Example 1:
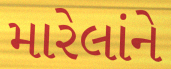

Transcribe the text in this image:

મારેલાંને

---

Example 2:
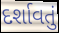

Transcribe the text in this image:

દર્શાવતું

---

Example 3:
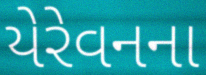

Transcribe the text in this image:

યેરેવનના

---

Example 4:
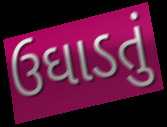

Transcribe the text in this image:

ઉઘાડતું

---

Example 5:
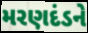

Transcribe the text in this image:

મરણદંડને